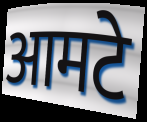
आमटे